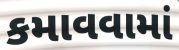
કમાવવામાં